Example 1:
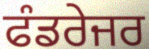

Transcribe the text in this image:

ਫੰਡਰੇਜਰ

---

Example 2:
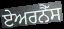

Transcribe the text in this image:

ਏਅਰਨੈੱਸ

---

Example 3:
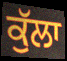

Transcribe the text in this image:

ਕੁੱਲਾ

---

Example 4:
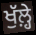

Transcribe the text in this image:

ਖੁੱਲ਼੍ਹੇ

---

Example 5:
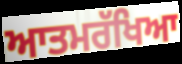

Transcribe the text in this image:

ਆਤਮਰੱਖਿਆ